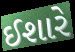
ઈશારે